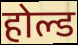
होल्ड